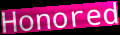
Honored